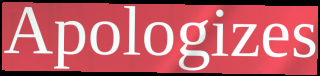
Apologizes